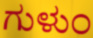
ಗುಳುಂ